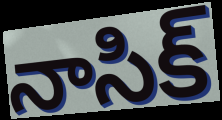
నాసిక్